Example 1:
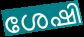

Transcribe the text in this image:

ശേഷി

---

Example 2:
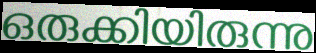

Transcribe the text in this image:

ഒരുക്കിയിരുന്നു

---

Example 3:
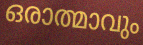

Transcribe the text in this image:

ഒരാത്മാവും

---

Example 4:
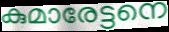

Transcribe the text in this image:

കുമാരേട്ടനെ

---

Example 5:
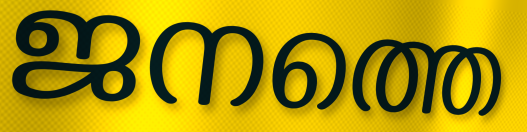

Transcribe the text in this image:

ജനത്തെ